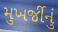
મુખર્જીનું